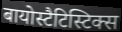
बायोस्टैटिस्टिक्स